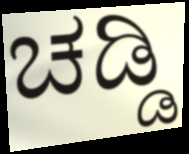
ಚಡ್ಡಿ